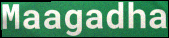
Maagadha